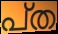
പ്‌ത